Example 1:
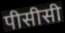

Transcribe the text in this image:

पीसीसी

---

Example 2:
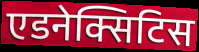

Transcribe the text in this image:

एडनेक्सिटिस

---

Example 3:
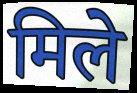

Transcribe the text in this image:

मिले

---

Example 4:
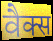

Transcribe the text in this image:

वैक्स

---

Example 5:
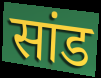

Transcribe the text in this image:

सांड